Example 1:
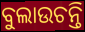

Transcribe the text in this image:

ବୁଲାଉଚନ୍ତି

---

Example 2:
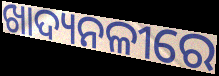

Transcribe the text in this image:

ଖାଦ୍ୟନଳୀରେ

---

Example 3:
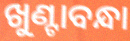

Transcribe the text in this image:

ଖୁଣ୍ଟାବନ୍ଧା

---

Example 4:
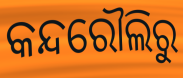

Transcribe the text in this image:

କନ୍ଦରୌଲିରୁ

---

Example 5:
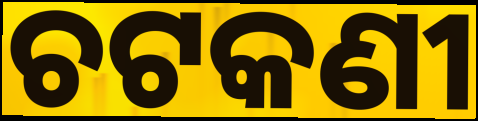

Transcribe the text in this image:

ଚଟକଣୀ